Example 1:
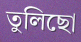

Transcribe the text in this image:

তুলিছো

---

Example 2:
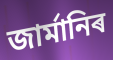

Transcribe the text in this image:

জাৰ্মানিৰ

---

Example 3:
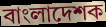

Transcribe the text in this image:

বাংলাদেশক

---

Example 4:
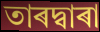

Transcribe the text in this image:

তাৰদ্বাৰা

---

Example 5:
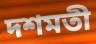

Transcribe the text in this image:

দশমতী